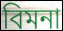
বিমনা